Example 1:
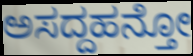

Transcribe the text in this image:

ಅಸದ್ದಹನ್ತೋ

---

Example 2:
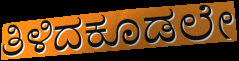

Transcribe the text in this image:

ತಿಳಿದಕೂಡಲೇ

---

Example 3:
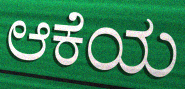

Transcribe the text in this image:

ಆಕೆಯ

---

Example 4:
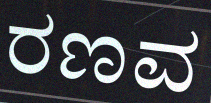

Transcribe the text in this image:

ರಣವ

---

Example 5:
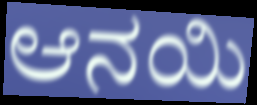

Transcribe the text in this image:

ಆನಯಿ